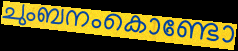
ചുംബനംകൊണ്ടോ